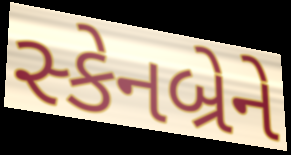
સ્કેનબ્રેને